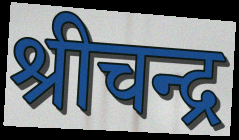
श्रीचन्द्र